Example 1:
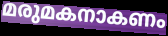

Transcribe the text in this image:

മരുമകനാകണം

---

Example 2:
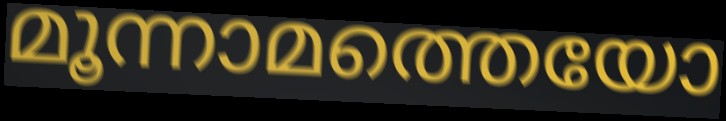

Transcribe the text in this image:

മൂന്നാമത്തെയോ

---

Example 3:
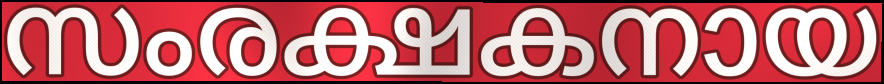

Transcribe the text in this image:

സംരക്ഷകനായ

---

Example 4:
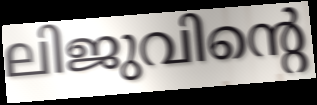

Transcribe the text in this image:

ലിജുവിന്റെ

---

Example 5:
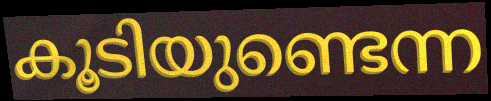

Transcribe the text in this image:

കൂടിയുണ്ടെന്ന